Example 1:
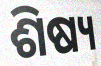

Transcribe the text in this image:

ଶିଷ୍ୟ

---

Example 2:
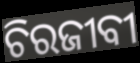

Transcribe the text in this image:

ଚିରଜୀବୀ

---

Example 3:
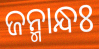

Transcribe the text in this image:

ଜନ୍ମାନ୍ଧଃ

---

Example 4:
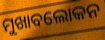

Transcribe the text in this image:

ମୁଖାବଲୋକନ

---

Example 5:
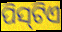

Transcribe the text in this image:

ପିସ୍‌ଟିଏ